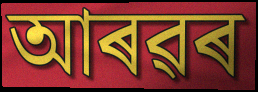
আৰৱৰ